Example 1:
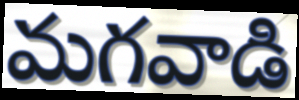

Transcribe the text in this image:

మగవాడి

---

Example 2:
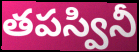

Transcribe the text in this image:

తపస్వినీ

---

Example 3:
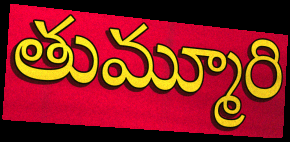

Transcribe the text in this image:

తుమ్మూరి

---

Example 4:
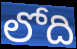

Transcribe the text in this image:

లోది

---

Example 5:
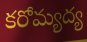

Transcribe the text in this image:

కరోమ్యద్య